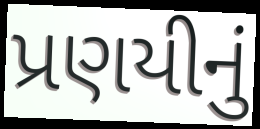
પ્રણયીનું